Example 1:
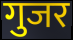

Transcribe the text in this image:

गुजर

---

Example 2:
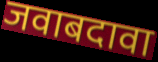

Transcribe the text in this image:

जवाबदावा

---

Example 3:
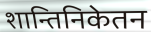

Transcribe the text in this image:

शान्तिनिकेतन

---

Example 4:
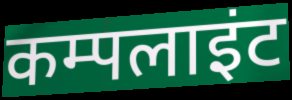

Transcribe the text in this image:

कम्पलाइंट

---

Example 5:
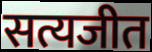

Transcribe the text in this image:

सत्यजीत